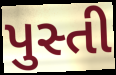
પુસ્તી